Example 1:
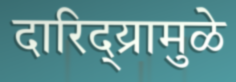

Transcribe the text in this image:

दारिद्य्रामुळे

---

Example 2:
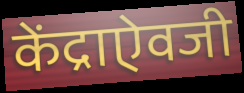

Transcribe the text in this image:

केंद्राऐवजी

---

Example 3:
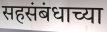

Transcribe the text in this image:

सहसंबंधाच्या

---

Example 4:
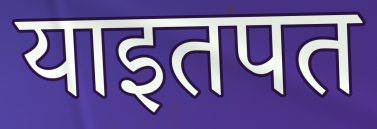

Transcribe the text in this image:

याइतपत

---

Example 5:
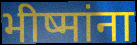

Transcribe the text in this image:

भीष्मांना